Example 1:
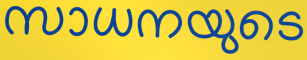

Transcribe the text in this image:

സാധനയുടെ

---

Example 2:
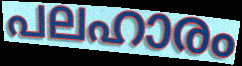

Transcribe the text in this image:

പലഹാരം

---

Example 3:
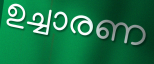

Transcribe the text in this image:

ഉച്ചാരണ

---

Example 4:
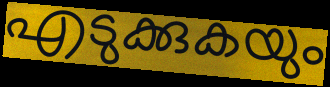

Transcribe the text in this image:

എടുക്കുകയും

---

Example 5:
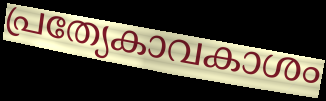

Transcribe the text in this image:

പ്രത്യേകാവകാശം